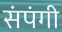
संपंगी